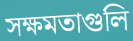
সক্ষমতাগুলি